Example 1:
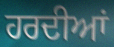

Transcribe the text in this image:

ਹਰਦੀਆਂ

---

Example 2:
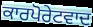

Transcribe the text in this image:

ਕਾਰਪੋਰੇਟਵਾਦ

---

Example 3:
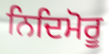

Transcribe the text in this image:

ਨਿਦਿਮੋਰੂ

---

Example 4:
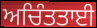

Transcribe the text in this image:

ਅਚਿੰਤਤਾਈ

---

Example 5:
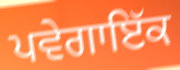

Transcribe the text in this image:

ਪਵੇਗਾਇੱਕ